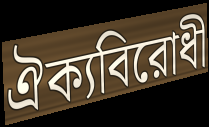
ঐক্যবিরোধী